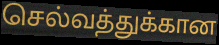
செல்வத்துக்கான